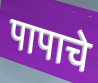
पापाचे